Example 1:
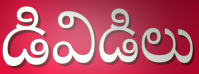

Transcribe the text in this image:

డివిడిలు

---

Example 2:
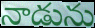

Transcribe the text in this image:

నాడును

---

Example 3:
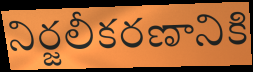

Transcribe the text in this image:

నిర్జలీకరణానికి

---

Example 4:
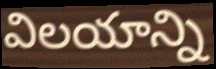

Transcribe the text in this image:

విలయాన్ని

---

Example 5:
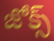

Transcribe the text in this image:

జోక్స్